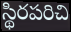
స్థిరపరిచి